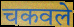
चकवले